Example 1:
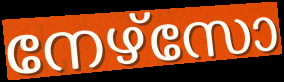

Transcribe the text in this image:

നേഴ്സോ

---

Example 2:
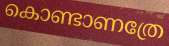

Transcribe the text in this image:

കൊണ്ടാണത്രേ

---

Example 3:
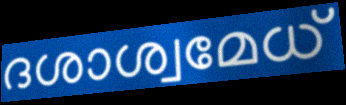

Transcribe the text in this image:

ദശാശ്വമേധ്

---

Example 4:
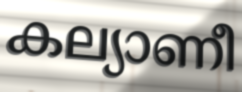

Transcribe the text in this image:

കല്യാണീ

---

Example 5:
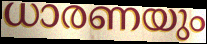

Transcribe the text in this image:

ധാരണയും